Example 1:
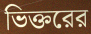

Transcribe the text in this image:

ভিক্তরের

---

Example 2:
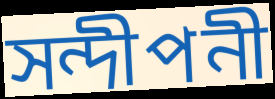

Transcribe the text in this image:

সন্দীপনী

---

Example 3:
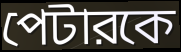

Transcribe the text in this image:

পেটারকে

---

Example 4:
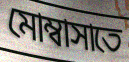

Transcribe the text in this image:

মোম্বাসাতে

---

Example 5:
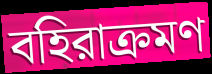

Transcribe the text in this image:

বহিরাক্রমণ